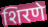
शिरणे